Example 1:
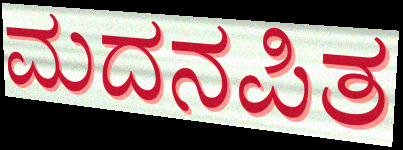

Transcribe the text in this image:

ಮದನಪಿತ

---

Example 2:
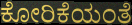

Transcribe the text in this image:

ಕೋರಿಕೆಯಂತೆ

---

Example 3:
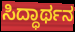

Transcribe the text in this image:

ಸಿದ್ಧಾರ್ಥನ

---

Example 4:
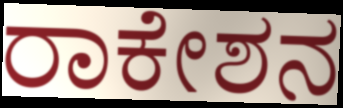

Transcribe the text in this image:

ರಾಕೇಶನ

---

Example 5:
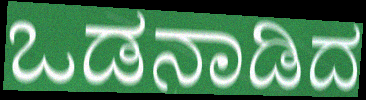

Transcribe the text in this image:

ಒಡನಾಡಿದ